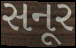
સનૂર